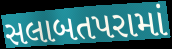
સલાબતપરામાં